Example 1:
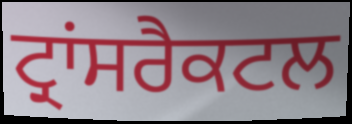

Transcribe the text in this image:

ਟ੍ਰਾਂਸਰੈਕਟਲ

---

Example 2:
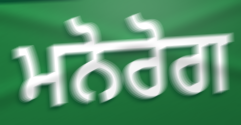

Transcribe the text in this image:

ਮਨੋਰੋਗ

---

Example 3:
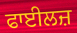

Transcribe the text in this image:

ਫਾਈਲਜ਼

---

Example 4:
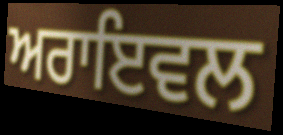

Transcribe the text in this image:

ਅਰਾਇਵਲ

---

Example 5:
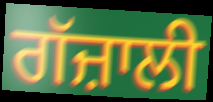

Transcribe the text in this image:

ਗੱਜ਼ਾਲੀ